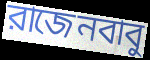
রাজেনবাবু